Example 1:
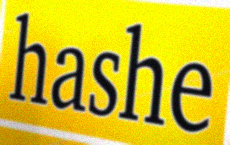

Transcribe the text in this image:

hashe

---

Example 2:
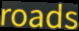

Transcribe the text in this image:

roads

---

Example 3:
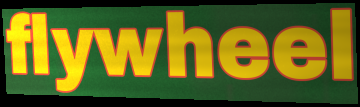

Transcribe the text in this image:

flywheel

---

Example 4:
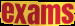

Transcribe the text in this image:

exams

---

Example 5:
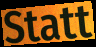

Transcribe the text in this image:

Statt